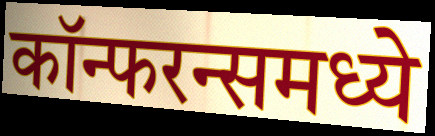
कॉन्फरन्समध्ये